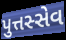
પુત્તસ્સેવ